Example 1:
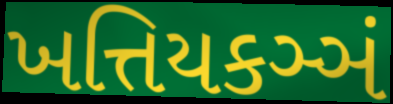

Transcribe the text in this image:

ખત્તિયકઞ્ઞં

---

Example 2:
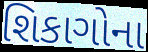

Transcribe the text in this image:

શિકાગોના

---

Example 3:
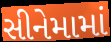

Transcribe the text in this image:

સીનેમામાં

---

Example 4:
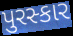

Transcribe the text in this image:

પુરસ્કાર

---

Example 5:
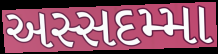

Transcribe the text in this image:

અસ્સદમ્મા